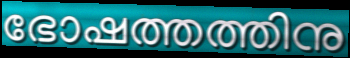
ഭോഷത്തത്തിനു